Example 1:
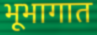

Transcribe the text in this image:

भूभागात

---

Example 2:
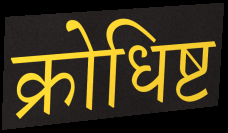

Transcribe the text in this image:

क्रोधिष्ट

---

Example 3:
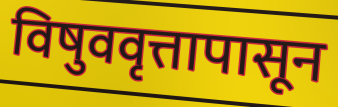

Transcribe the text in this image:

विषुववृत्तापासून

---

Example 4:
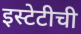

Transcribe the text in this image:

इस्टेटीची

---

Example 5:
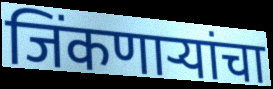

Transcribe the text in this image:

जिंकणाऱ्यांचा